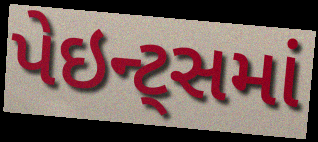
પેઇન્ટ્સમાં